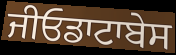
ਜੀਓਡਾਟਾਬੇਸ